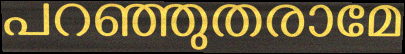
പറഞ്ഞുതരാമേ